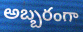
అబ్బరంగా